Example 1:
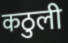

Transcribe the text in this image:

कठुली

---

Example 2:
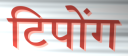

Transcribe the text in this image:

टिपोंग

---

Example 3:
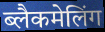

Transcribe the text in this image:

ब्लैकमेलिंग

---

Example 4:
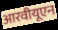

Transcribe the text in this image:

आरवीयूएन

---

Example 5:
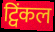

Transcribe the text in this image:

ट्विंकल